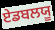
ਏਡਬਲਯੂ